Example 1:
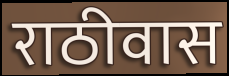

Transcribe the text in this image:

राठीवास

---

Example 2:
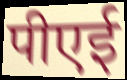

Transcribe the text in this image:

पीएई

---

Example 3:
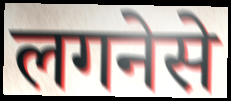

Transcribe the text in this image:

लगनेसे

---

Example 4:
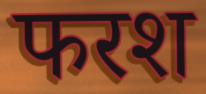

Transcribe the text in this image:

फरश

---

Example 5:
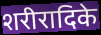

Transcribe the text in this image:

शरीरादिके